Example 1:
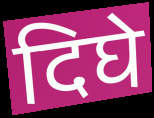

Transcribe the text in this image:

दिघे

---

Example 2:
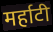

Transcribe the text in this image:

मर्हाटी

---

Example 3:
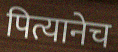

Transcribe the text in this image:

पित्यानेच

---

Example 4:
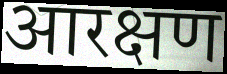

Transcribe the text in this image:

आरक्षण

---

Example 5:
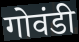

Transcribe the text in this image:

गोवंडी